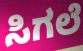
ಸಿಗಲೆ